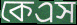
কেএস